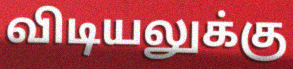
விடியலுக்கு